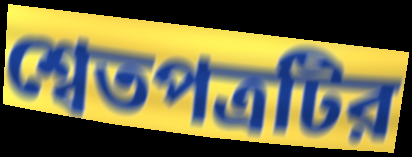
শ্বেতপত্রটির